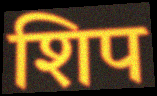
शिप